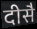
दीसै